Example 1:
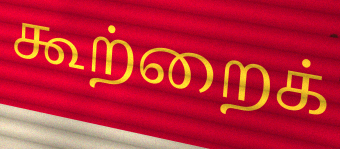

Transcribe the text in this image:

கூற்றைக்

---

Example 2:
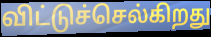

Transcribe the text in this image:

விட்டுச்செல்கிறது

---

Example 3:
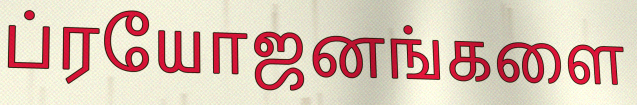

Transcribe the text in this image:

ப்ரயோஜனங்களை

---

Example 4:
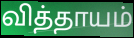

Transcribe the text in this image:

வித்தாயம்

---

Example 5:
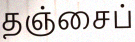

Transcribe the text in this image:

தஞ்சைப்